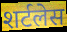
शर्टलेस